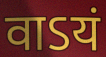
वाऽयं